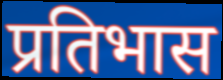
प्रतिभास